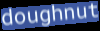
doughnut